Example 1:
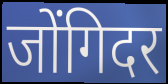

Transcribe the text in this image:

जोंगिदर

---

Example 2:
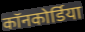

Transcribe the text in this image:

कॉनकोर्डिया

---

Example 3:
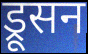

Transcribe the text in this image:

ड्रूसन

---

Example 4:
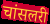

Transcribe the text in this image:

चांसलरी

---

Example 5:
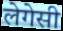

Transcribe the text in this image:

लेगेसी